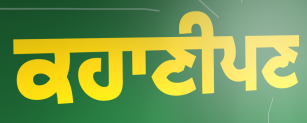
ਕਹਾਣੀਪਣ